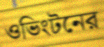
ওভিংটনের